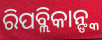
ରିପବ୍ଲିକାନ୍ଙ୍କ